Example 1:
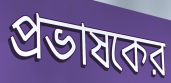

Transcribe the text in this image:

প্রভাষকের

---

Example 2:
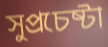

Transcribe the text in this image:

সুপ্রচেষ্টা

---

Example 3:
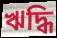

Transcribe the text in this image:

ঋদ্ধি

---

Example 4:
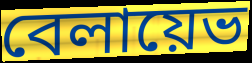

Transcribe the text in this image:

বেলায়েভ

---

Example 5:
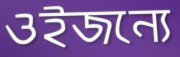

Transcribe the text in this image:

ওইজন্যে